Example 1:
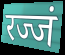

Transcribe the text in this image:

रज्जं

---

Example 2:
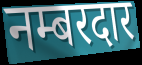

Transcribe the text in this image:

नम्बरदार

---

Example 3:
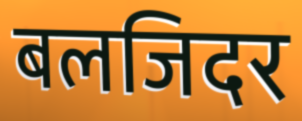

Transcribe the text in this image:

बलजिदर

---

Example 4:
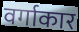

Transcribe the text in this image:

वर्गाकार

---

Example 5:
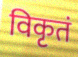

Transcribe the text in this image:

विकृतं